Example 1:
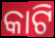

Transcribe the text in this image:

କାଟି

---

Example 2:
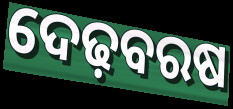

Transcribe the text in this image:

ଦେଢ଼ବରଷ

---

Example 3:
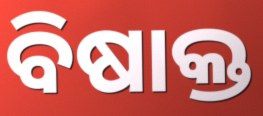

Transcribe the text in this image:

ବିଷାକ୍ତ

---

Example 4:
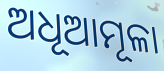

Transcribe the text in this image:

ଅଧୂଆମୂଳା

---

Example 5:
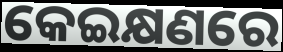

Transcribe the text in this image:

କେଇକ୍ଷଣରେ